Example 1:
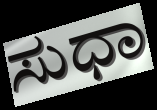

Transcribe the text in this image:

ಸುಧಾ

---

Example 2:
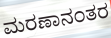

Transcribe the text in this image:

ಮರಣಾನಂತರ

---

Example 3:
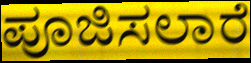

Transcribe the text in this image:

ಪೂಜಿಸಲಾರೆ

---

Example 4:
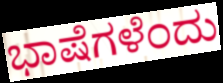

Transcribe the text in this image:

ಭಾಷೆಗಳೆಂದು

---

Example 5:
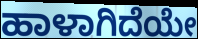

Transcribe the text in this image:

ಹಾಳಾಗಿದೆಯೇ